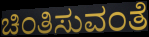
ಚಿಂತಿಸುವಂತೆ